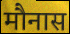
मौनास